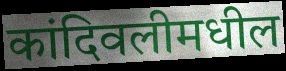
कांदिवलीमधील